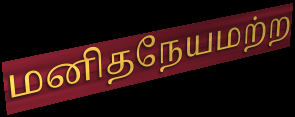
மனிதநேயமற்ற